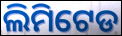
ଲିମିଟେଡ